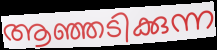
ആഞ്ഞടിക്കുന്ന